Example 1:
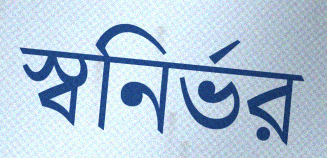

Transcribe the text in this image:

স্বনির্ভর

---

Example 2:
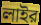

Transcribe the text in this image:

লাইর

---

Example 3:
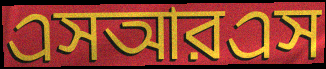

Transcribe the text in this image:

এসআরএস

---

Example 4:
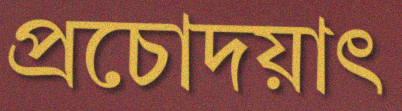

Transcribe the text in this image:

প্রচোদয়াৎ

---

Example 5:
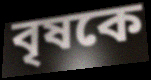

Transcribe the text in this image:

বৃষকে